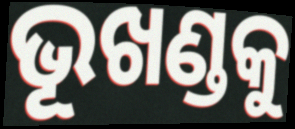
ଭୂଖଣ୍ଡକୁ